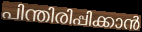
പിന്തിരിപ്പിക്കാൻ